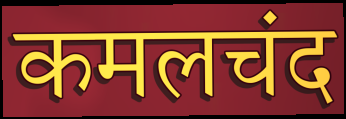
कमलचंद